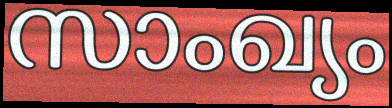
സാംഖ്യം